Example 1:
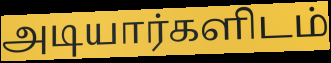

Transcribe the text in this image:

அடியார்களிடம்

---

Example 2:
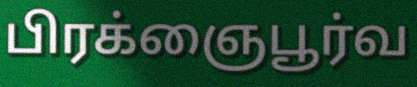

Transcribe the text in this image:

பிரக்ஞைபூர்வ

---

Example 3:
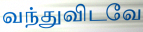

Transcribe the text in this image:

வந்துவிடவே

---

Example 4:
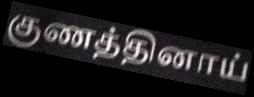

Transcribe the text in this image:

குணத்தினாய்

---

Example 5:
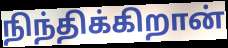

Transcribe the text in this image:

நிந்திக்கிறான்